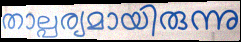
താല്പര്യമായിരുന്നു